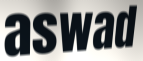
aswad